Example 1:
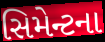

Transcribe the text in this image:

સિમેન્ટના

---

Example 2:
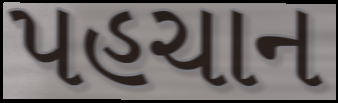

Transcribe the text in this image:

પહચાન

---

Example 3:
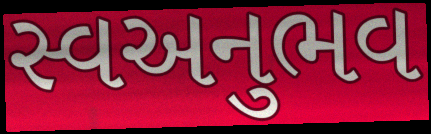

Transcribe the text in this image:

સ્વઅનુભવ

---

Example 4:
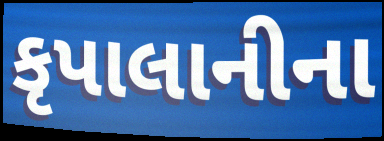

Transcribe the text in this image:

કૃપાલાનીના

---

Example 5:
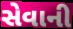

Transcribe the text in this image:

સેવાની